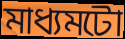
মাধ্যমটো